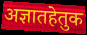
अज्ञातहेतुक